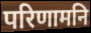
परिणामनि